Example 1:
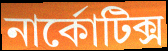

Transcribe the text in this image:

নার্কোটিক্স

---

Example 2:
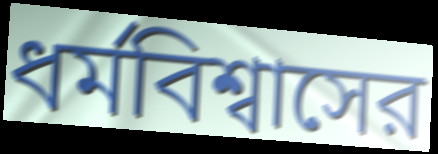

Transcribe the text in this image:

ধর্মবিশ্বাসের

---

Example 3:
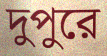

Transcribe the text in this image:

দুপুরে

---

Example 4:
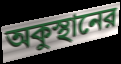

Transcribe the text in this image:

অকুস্থানের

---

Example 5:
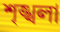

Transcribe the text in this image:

শৃঙ্খলা